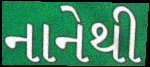
નાનેથી